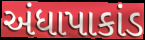
અંધાપાકાંડ